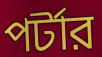
পর্টার